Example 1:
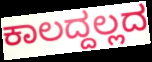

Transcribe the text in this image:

ಕಾಲದ್ದಲ್ಲದ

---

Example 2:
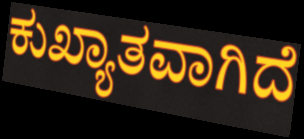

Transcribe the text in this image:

ಕುಖ್ಯಾತವಾಗಿದೆ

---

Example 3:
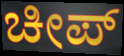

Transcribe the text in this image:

ಚೀಪ್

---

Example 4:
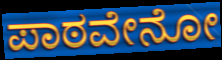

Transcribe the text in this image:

ಪಾಠವೇನೋ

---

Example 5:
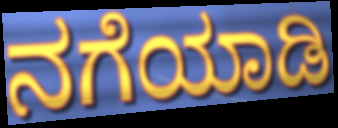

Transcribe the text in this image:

ನಗೆಯಾಡಿ